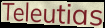
Teleutias